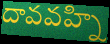
దావవహ్ని